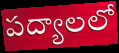
పద్యాలలో